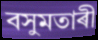
বসুমতাৰী